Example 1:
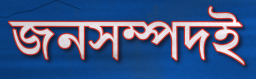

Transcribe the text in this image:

জনসম্পদই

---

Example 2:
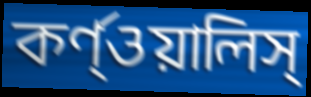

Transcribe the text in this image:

কর্ণ্ওয়ালিস্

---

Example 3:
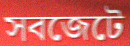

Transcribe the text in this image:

সবজেটে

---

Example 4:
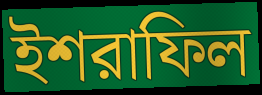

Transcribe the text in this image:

ইশরাফিল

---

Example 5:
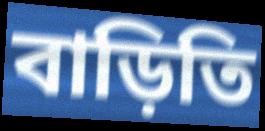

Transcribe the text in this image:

বাড়িতি